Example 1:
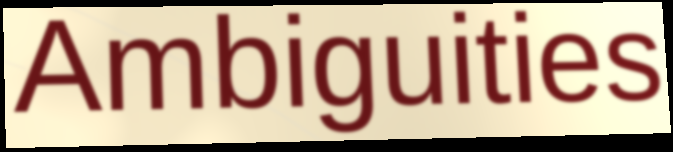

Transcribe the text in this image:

Ambiguities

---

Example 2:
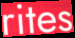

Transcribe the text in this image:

rites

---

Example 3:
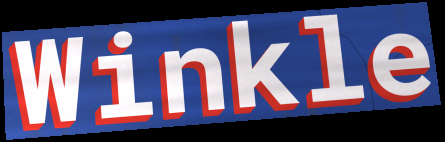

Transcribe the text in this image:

Winkle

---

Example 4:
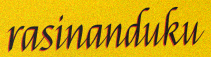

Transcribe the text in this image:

rasinanduku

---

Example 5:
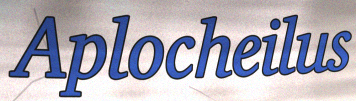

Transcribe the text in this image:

Aplocheilus